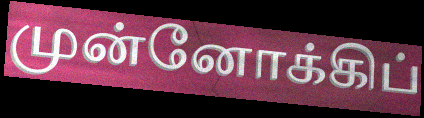
முன்னோக்கிப்